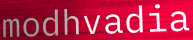
modhvadia